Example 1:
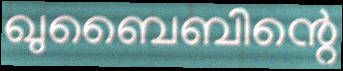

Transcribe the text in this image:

ഖുബൈബിന്റെ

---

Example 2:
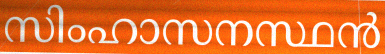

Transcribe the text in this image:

സിംഹാസനസ്ഥൻ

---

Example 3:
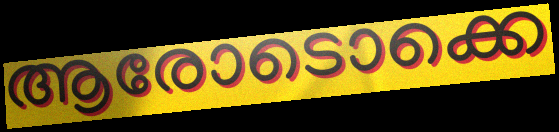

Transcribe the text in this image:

ആരോടൊക്കെ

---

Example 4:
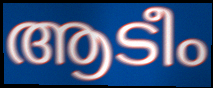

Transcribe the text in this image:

ആടീം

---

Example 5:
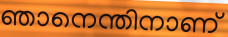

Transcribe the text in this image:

ഞാനെന്തിനാണ്